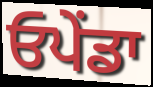
ਓਪੇਂਡਾ